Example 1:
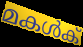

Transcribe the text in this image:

മകൾക്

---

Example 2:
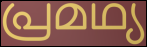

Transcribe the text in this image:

പ്രമഥ്യ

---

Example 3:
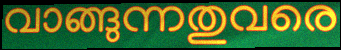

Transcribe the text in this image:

വാങ്ങുന്നതുവരെ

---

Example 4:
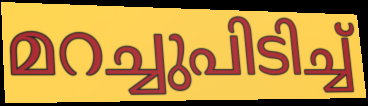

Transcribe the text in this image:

മറച്ചുപിടിച്ച്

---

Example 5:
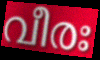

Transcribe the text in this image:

വീരഃ